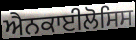
ਐਨਕਾਈਲੋਸਿਸ